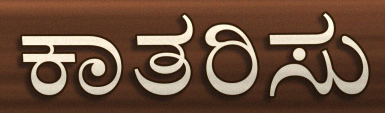
ಕಾತರಿಸು